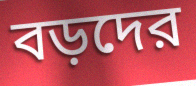
বড়দের